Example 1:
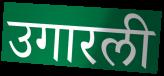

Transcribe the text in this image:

उगारली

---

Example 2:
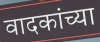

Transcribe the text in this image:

वादकांच्या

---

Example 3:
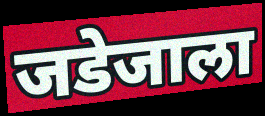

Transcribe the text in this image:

जडेजाला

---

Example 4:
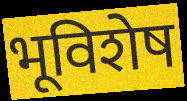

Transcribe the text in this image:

भूविशेष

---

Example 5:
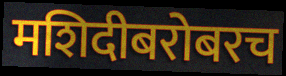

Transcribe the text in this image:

मशिदीबरोबरच